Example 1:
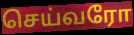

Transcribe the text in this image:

செய்வரோ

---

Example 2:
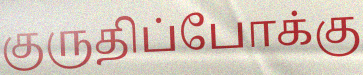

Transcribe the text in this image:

குருதிப்போக்கு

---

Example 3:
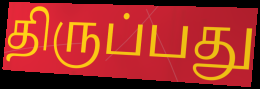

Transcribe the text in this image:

திருப்பது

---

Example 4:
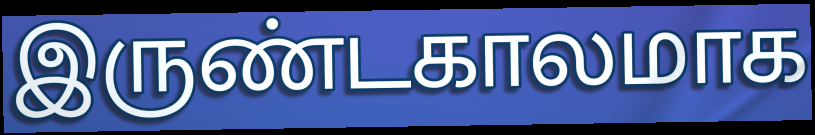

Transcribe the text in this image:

இருண்டகாலமாக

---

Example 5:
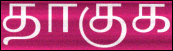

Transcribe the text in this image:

தாகுக